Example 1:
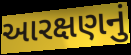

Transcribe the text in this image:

આરક્ષણનું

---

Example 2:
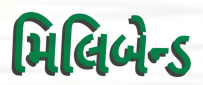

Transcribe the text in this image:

મિલિબેન્ડ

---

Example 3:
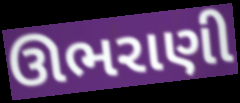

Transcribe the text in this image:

ઊભરાણી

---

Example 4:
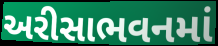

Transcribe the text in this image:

અરીસાભવનમાં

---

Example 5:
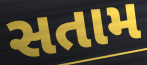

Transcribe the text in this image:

સતામ